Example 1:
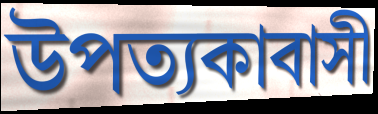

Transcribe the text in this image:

উপত্যকাবাসী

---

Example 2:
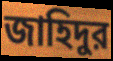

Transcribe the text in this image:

জাহিদুর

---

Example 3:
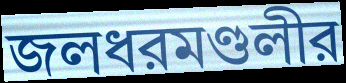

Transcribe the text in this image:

জলধরমণ্ডলীর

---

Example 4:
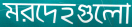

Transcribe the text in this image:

মরদেহগুলো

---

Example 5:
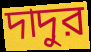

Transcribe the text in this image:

দাদুর